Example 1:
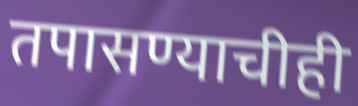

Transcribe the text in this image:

तपासण्याचीही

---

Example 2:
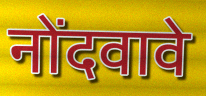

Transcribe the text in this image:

नोंदवावे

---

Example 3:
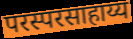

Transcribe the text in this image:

परस्परसाहाय्य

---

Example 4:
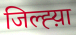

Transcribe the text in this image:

जिल्ह्य़ा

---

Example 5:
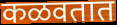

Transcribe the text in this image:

कळवतात